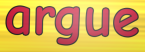
argue